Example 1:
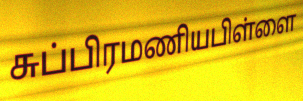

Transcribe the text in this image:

சுப்பிரமணியபிள்ளை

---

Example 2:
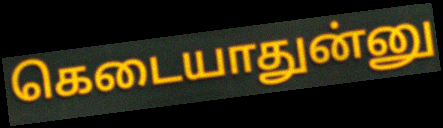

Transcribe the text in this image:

கெடையாதுன்னு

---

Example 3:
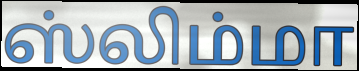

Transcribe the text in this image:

ஸ்லிம்மா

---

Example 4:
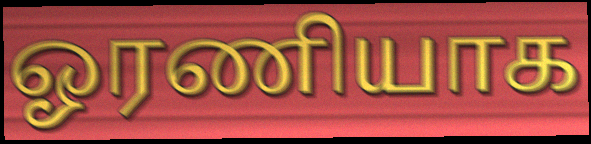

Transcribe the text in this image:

ஓரணியாக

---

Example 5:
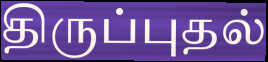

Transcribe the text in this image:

திருப்புதல்